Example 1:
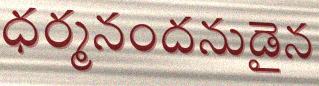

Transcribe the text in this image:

ధర్మనందనుడైన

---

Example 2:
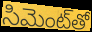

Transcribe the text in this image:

సిమెంట్‌తో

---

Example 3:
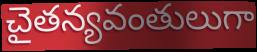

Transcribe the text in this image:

చైతన్యవంతులుగా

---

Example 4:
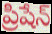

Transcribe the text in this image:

ప్రిషేన్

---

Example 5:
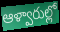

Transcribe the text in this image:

ఆళ్వారుల్లో